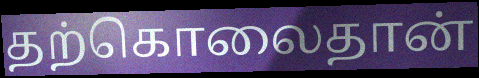
தற்கொலைதான்